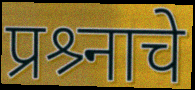
प्रश्र्नाचे